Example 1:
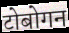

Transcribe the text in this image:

टोबोगन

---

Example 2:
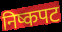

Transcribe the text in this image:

निष्कपट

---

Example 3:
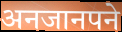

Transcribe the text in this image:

अनजानपने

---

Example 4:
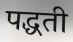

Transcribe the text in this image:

पद्धती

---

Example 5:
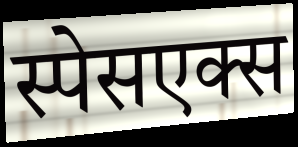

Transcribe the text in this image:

स्‍पेसएक्‍स